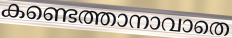
കണ്ടെത്താനാവാതെ